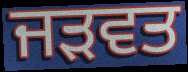
ਜੜਵਤ